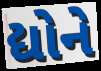
દ્યોને